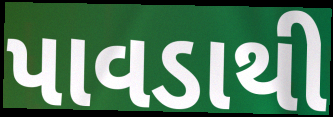
પાવડાથી